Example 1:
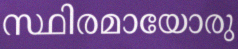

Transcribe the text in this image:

സ്ഥിരമായോരു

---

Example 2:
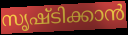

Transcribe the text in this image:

സൃഷ്ടിക്കാൻ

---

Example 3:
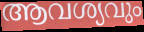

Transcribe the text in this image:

ആവശ്യവും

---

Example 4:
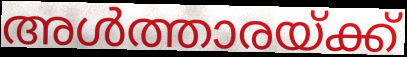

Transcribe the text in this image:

അൾത്താരയ്ക്ക്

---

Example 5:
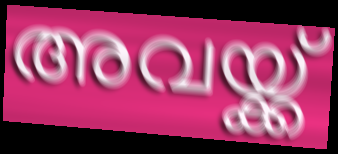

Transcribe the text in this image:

അവയ്ക്ക്